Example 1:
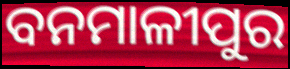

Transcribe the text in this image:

ବନମାଳୀପୁର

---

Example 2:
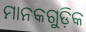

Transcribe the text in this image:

ମାନକଗୁଡ଼ିକ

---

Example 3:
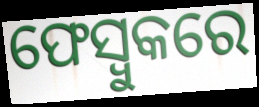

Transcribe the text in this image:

ଫେସ୍ବୁକରେ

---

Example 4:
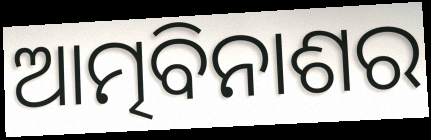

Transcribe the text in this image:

ଆତ୍ମବିନାଶର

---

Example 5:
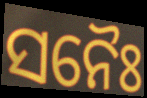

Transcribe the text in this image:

ସନୈଃ